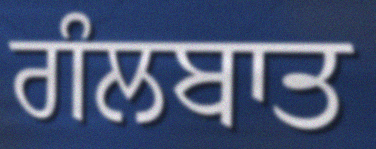
ਗੰਲਬਾਤ